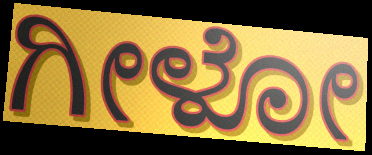
ಗೀಳೋ